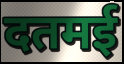
दतमई